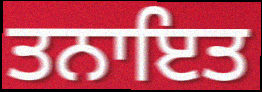
ਤਨਾਇਤ